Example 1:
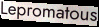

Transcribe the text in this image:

Lepromatous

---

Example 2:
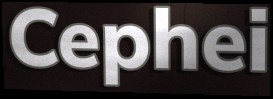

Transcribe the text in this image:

Cephei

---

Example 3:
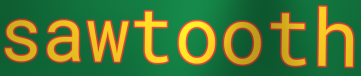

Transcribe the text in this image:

sawtooth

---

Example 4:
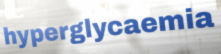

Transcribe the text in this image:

hyperglycaemia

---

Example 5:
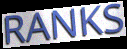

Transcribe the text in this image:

RANKS